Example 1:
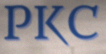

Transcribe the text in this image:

PKC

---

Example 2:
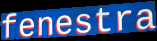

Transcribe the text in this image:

fenestra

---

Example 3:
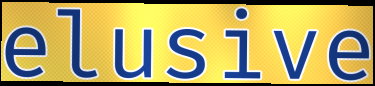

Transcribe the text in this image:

elusive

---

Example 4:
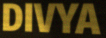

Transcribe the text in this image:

DIVYA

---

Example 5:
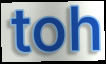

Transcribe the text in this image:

toh